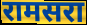
रामसरा